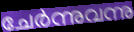
ചേർന്നുവന്നു